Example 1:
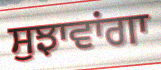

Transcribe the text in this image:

ਸੁਝਾਵਾਂਗਾ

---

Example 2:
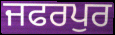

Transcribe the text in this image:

ਜਫਰਪੁਰ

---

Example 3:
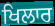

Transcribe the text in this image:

ਖਿਲਾਰ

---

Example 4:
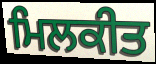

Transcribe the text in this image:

ਮਿਲਕੀਤ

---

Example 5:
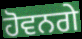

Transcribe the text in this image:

ਹੋਵਨਗੇ